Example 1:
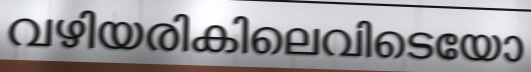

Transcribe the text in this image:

വഴിയരികിലെവിടെയോ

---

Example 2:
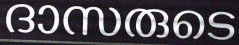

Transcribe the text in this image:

ദാസരുടെ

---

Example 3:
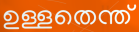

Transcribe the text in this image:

ഉള്ളതെന്ത്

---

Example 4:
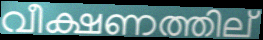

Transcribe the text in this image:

വീക്ഷണത്തില്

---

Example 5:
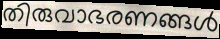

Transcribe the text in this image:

തിരുവാഭരണങ്ങൾ